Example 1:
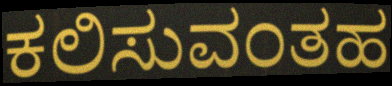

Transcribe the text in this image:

ಕಲಿಸುವಂತಹ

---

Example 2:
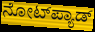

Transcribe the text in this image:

ನೋಟ್‌ಪ್ಯಾಡ್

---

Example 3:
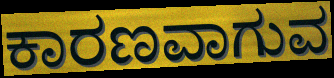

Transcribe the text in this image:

ಕಾರಣವಾಗುವ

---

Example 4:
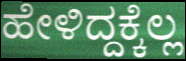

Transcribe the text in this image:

ಹೇಳಿದ್ದಕ್ಕೆಲ್ಲ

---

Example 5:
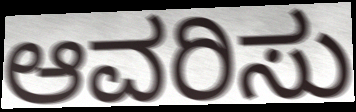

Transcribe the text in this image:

ಆವರಿಸು